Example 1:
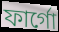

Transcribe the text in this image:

ফার্গো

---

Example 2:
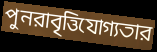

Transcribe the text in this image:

পুনরাবৃত্তিযোগ্যতার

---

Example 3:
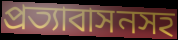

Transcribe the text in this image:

প্রত্যাবাসনসহ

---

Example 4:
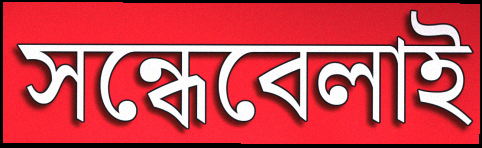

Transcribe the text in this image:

সন্ধেবেলাই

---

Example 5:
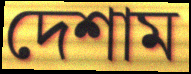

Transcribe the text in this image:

দেশাম